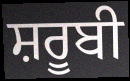
ਸ਼ਰੂਬੀ